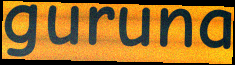
guruna